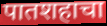
पातशहाचा